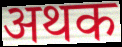
अथक